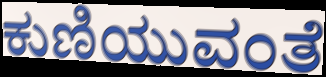
ಕುಣಿಯುವಂತೆ